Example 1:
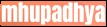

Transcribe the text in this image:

mhupadhya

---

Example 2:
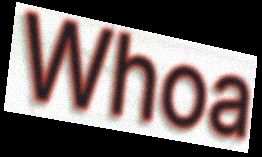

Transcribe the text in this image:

Whoa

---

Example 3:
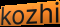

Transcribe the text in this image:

kozhi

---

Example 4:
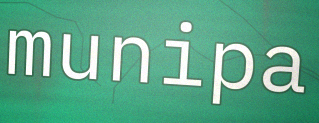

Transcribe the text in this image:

munipa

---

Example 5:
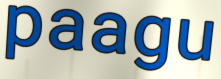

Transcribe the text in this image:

paagu